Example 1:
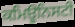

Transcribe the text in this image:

ਕਮਿਊਨਿਸਟੀ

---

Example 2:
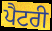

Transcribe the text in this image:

ਪੈਟਰੀ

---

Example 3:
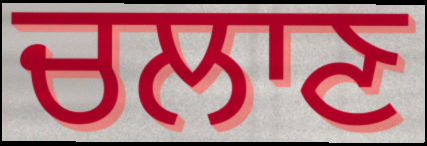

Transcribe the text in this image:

ਚਲਾਣ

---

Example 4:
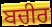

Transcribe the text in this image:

ਬਚੀਰ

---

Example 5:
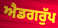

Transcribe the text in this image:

ਐਡਗਰੁੱਪ